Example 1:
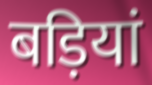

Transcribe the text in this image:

बड़ियां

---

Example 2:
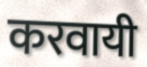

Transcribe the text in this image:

करवायी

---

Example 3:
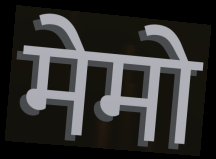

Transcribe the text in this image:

मेमो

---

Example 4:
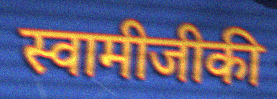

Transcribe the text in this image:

स्वामीजीकी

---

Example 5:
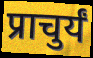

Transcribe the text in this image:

प्राचुर्यं